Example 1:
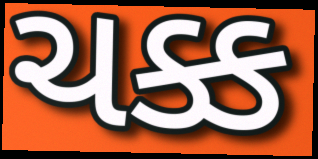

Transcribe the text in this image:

ચક્ક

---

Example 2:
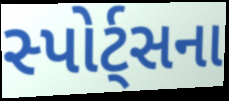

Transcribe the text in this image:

સ્પોર્ટ્સના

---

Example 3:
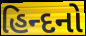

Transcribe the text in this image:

હિન્દનો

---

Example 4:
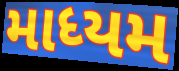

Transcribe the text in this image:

માધ્યમ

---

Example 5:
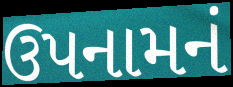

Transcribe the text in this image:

ઉપનામનં